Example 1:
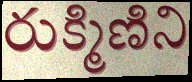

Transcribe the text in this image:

రుక్మిణిని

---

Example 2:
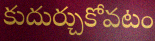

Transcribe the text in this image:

కుదుర్చుకోవటం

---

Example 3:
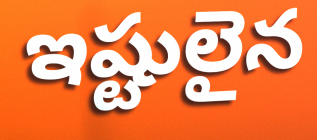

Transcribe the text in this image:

ఇష్టులైన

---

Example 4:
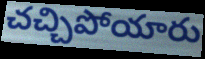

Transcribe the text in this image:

చచ్చిపోయారు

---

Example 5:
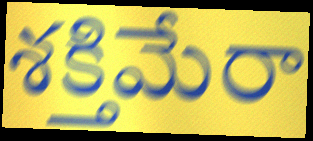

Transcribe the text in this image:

శక్తిమేరా